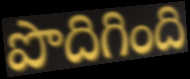
పొదిగింది